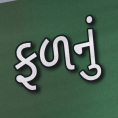
ફળનું